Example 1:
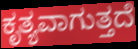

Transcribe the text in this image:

ಕೃತ್ಯವಾಗುತ್ತದೆ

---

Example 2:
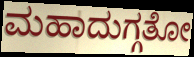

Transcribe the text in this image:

ಮಹಾದುಗ್ಗತೋ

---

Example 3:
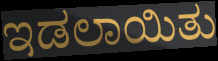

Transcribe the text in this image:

ಇಡಲಾಯಿತು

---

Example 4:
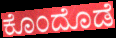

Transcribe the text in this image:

ಕೊಂದೊಡೆ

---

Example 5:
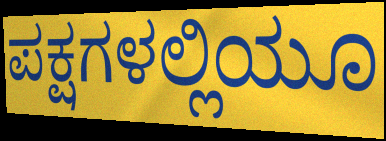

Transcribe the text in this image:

ಪಕ್ಷಗಳಲ್ಲಿಯೂ